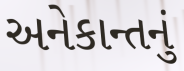
અનેકાન્તનું